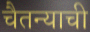
चैतन्याची